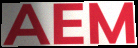
AEM